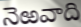
నెఱవాది